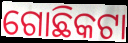
ଗୋଛିକଟା